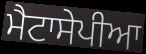
ਮੈਟਾਸੇਪੀਆ